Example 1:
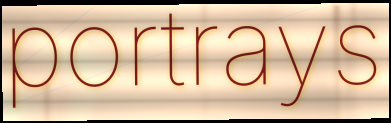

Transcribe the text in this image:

portrays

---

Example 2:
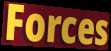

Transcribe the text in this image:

Forces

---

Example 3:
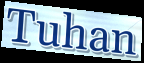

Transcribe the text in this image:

Tuhan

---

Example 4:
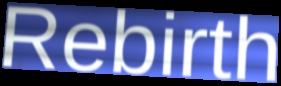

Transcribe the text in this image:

Rebirth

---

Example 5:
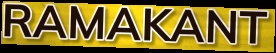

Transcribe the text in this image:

RAMAKANT